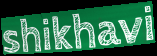
shikhavi